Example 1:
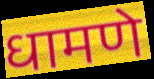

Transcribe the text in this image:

धामणे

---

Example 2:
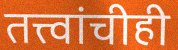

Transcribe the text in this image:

तत्त्वांचीही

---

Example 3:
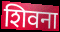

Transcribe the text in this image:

शिवना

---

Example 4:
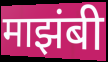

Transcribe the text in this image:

माझंबी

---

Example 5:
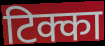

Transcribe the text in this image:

टिक्का